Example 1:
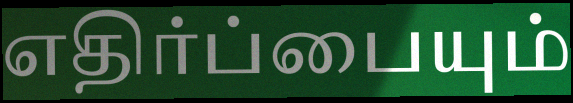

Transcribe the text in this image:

எதிர்ப்பையும்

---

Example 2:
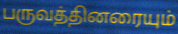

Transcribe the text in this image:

பருவத்தினரையும்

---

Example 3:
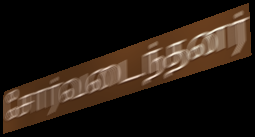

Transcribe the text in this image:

சோர்வடைந்தனர்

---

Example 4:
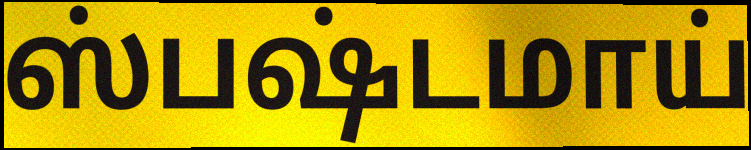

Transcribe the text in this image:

ஸ்பஷ்டமாய்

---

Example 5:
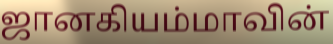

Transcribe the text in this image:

ஜானகியம்மாவின்